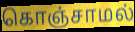
கொஞ்சாமல்